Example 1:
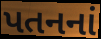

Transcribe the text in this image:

પતનનાં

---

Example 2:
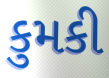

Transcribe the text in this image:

કુમકી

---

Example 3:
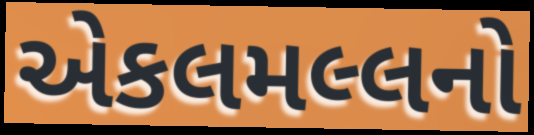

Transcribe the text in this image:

એકલમલ્લનો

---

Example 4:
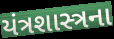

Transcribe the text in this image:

યંત્રશાસ્ત્રના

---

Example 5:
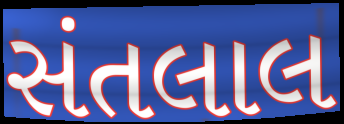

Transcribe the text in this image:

સંતલાલ